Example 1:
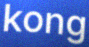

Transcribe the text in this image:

kong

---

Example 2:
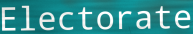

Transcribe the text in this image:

Electorate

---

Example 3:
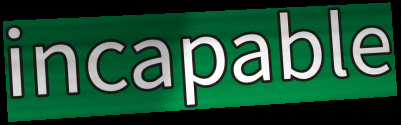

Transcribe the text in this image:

incapable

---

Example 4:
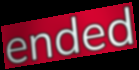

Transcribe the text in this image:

ended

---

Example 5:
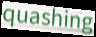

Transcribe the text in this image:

quashing